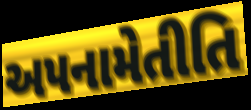
અપનામેતીતિ